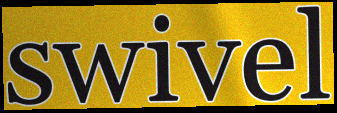
swivel